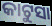
କାଟୁସା